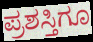
ಪ್ರಶಸ್ತಿಗೂ